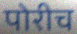
पोरीच